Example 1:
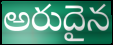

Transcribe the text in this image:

అరుదైన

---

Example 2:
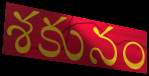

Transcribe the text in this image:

శకునం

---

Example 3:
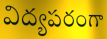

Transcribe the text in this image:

విద్యపరంగా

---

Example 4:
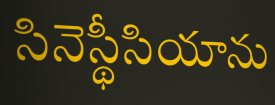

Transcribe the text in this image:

సినెస్థీసియాను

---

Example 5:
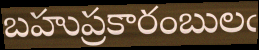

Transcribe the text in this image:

బహుప్రకారంబులఁ